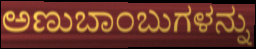
ಅಣುಬಾಂಬುಗಳನ್ನು